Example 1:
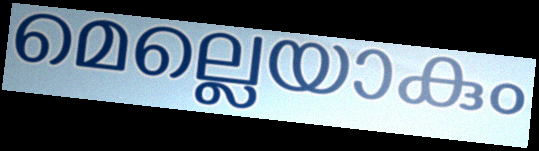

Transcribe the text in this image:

മെല്ലെയാകും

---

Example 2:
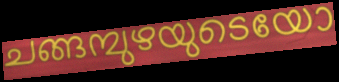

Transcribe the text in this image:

ചങ്ങമ്പുഴയുടെയോ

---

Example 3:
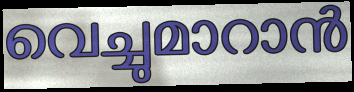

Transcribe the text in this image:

വെച്ചുമാറാൻ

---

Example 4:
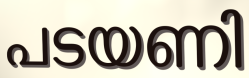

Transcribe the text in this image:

പടയണി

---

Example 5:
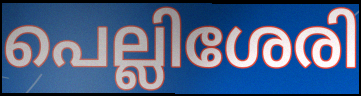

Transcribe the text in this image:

പെല്ലിശേരി